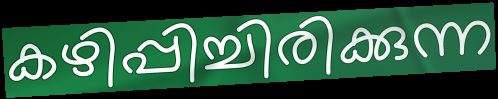
കഴിപ്പിച്ചിരിക്കുന്ന